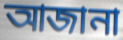
আজানা